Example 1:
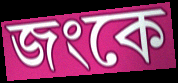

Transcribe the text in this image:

জংকে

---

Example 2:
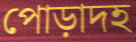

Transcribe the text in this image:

পোড়াদহ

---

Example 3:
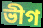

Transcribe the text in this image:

ভীগ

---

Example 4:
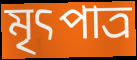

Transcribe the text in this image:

মৃৎপাত্র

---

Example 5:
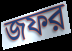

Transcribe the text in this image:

জফর